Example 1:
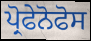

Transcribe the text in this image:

ਪ੍ਰੋਫੇਨੋਫੋਸ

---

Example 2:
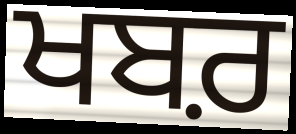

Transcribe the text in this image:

ਖਬ਼ਰ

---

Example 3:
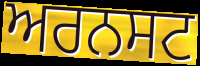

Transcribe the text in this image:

ਅਰਨਸਟ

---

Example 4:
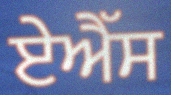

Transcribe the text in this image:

ਏਐੱਸ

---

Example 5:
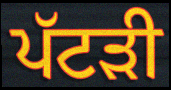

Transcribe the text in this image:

ਪੱਟੜੀ